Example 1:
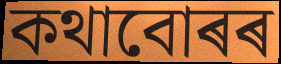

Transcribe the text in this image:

কথাবোৰৰ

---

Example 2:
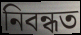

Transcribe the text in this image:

নিবন্ধত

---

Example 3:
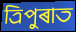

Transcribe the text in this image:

ত্ৰিপুৰাত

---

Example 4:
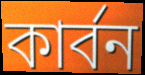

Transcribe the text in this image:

কাৰ্বন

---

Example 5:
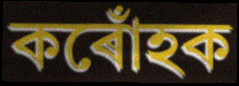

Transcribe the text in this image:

কৰোঁহক